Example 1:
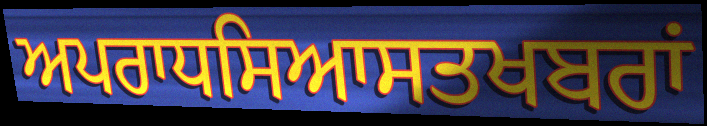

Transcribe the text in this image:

ਅਪਰਾਧਸਿਆਸਤਖਬਰਾਂ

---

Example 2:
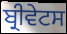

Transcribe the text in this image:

ਬ੍ਰੀਵੇਟਸ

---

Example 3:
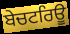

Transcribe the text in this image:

ਬੇਚਟਰਿਊ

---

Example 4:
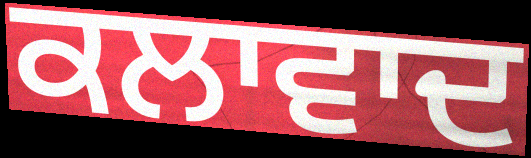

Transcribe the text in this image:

ਕਲਾਵਾਦ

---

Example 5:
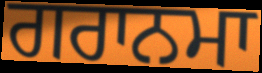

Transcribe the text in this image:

ਗਰਾਨਮਾ